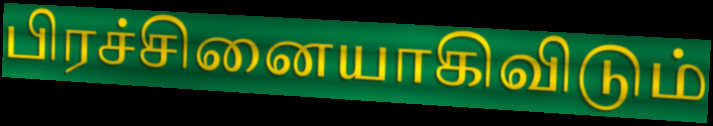
பிரச்சினையாகிவிடும்